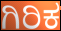
ಗಿರಿಕ